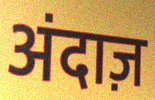
अंदाज़